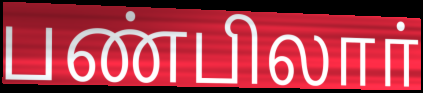
பண்பிலார்